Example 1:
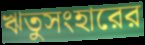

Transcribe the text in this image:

ঋতুসংহারের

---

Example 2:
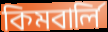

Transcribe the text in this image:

কিমবার্লি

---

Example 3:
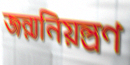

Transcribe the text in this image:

জন্মনিয়ন্ত্রণ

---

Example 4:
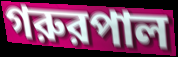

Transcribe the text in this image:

গরুরপাল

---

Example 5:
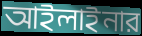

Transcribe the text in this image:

আইলাইনার